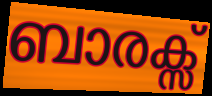
ബാരക്സ്